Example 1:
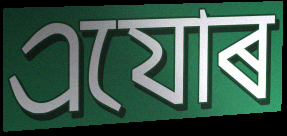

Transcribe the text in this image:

এযোৰ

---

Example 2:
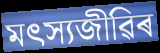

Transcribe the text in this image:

মৎস্যজীৱিৰ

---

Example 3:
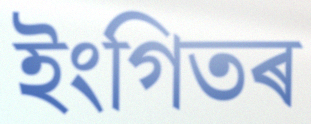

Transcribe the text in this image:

ইংগিতৰ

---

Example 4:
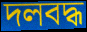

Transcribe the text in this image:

দলবদ্ধ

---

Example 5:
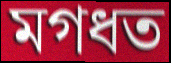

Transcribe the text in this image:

মগধত